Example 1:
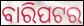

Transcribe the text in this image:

ବାରିପଟର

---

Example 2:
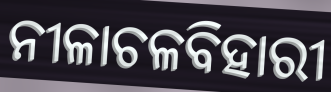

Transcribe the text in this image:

ନୀଳାଚଳବିହାରୀ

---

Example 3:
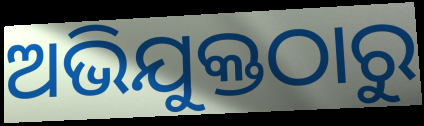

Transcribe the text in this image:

ଅଭିଯୁକ୍ତଠାରୁ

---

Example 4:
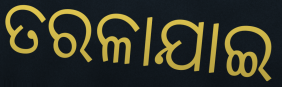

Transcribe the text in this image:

ତରଳାଯାଇ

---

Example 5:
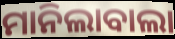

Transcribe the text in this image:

ମାନିଲାବାଲା